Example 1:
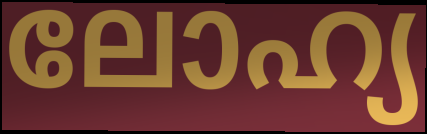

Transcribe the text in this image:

ലോഹ്യ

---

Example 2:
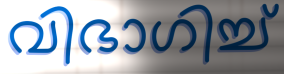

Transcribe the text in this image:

വിഭാഗിച്ച്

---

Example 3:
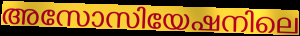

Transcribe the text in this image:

അസോസിയേഷനിലെ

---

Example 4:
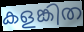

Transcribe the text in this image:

കളങ്കിത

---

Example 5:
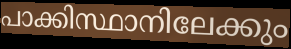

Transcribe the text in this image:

പാക്കിസ്ഥാനിലേക്കും